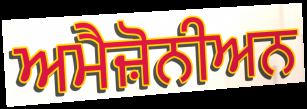
ਅਮੈਜ਼ੋਨੀਅਨ